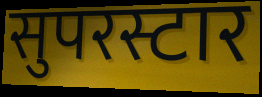
सुपरस्टार